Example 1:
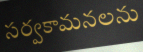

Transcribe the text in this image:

సర్వకామనలను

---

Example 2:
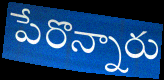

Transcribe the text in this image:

పేరొన్నారు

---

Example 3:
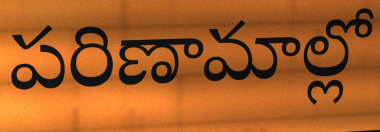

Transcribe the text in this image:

పరిణామాల్లో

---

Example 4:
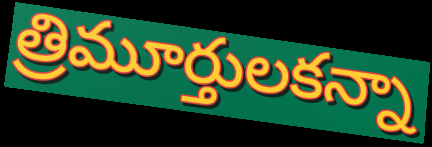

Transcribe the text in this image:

త్రిమూర్తులకన్నా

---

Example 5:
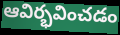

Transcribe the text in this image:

ఆవిర్భవించడం